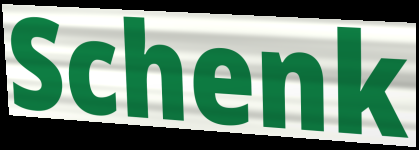
Schenk